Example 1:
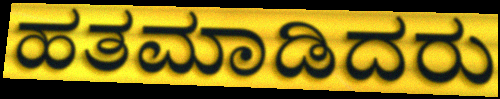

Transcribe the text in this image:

ಹತಮಾಡಿದರು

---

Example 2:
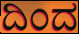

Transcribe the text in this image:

ದಿಂದ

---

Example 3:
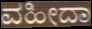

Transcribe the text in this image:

ವಹೀದಾ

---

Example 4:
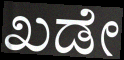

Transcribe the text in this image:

ಖಡೇ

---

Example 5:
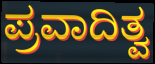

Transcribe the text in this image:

ಪ್ರವಾದಿತ್ವ